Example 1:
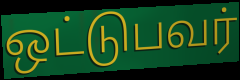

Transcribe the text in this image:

ஒட்டுபவர்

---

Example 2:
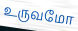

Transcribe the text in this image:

உருவமோ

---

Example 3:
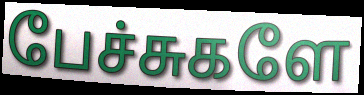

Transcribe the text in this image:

பேச்சுகளே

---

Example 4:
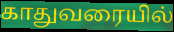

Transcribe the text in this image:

காதுவரையில்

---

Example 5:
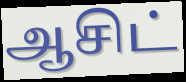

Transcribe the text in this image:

ஆசிட்